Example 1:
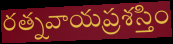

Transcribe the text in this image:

రత్నవాయప్రశస్తిం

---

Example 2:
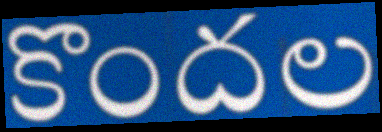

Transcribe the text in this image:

కొందల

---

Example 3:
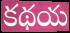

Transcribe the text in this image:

కథయ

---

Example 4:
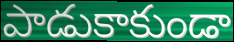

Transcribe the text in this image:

పాడుకాకుండా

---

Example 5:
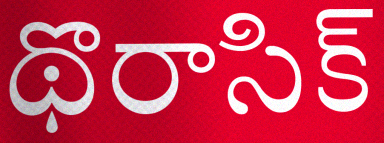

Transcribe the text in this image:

థొరాసిక్